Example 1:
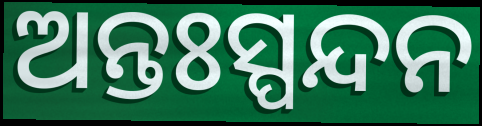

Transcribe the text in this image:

ଅନ୍ତଃସ୍ପନ୍ଦନ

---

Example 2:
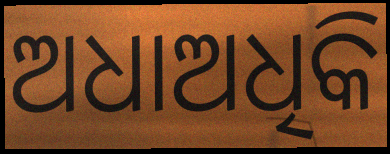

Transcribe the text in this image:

ଅଧାଅଧିକି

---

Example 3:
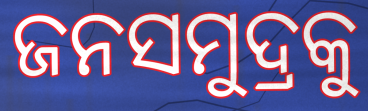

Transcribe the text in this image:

ଜନସମୁଦ୍ରକୁ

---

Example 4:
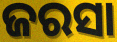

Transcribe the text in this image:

ଜରସା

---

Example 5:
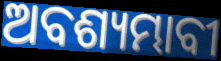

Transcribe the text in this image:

ଅବଶ୍ୟମ୍ଭାବୀ